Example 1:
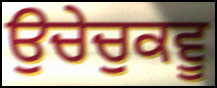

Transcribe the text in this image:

ਉਚੇਚੁਕਵੂ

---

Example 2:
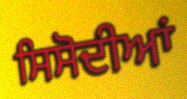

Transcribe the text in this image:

ਸਿਸੋਦੀਆਂ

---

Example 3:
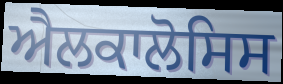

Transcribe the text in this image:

ਐਲਕਾਲੋਸਿਸ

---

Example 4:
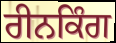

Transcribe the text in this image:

ਰੀਨਕਿੰਗ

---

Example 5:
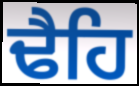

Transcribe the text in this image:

ਢੈਹਿ